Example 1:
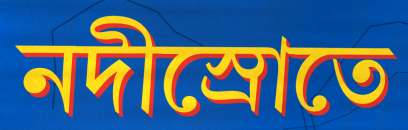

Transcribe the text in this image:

নদীস্রোতে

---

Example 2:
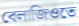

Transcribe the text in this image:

বেলাজিওতে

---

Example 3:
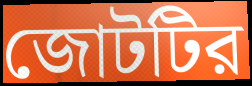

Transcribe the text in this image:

জোটটির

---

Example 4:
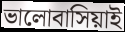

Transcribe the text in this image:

ভালোবাসিয়াই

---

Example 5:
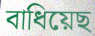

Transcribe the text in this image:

বাধিয়েছ